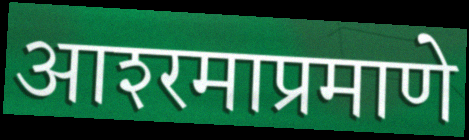
आश्रमाप्रमाणे